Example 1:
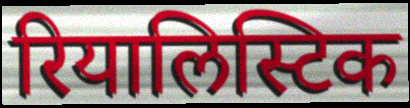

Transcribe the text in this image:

रियालिस्टिक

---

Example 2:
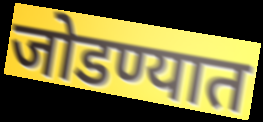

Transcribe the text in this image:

जोडण्यात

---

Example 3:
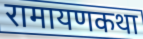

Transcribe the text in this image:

रामायणकथा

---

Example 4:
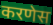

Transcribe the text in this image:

करणेस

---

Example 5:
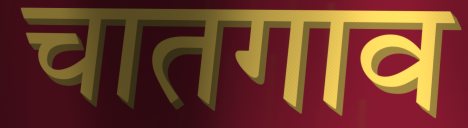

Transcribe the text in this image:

चातगाव